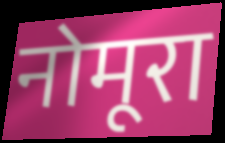
नोमूरा